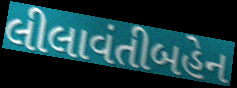
લીલાવંતીબહેન